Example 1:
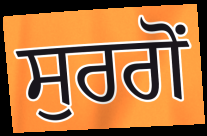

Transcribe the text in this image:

ਸੁਰਗੋਂ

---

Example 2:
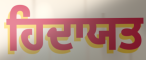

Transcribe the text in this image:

ਹਿਦਾਯਤ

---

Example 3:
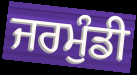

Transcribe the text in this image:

ਜਰਮੁੰਡੀ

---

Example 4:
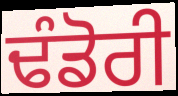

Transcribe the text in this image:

ਢੰਡੋਰੀ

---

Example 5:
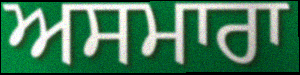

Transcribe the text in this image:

ਅਸਮਾਰਾ